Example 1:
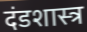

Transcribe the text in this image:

दंडशास्त्र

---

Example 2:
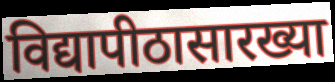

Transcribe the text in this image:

विद्यापीठासारख्या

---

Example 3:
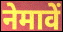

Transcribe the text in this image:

नेमावें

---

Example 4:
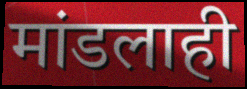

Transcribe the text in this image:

मांडलाही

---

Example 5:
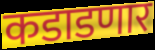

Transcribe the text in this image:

कडाडणार